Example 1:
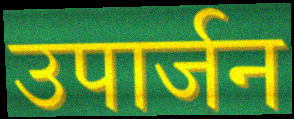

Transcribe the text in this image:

उपार्जन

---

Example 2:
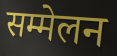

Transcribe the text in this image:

सम्मेलन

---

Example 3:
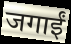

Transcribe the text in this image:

जगाईं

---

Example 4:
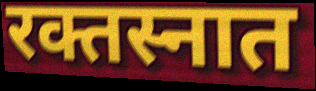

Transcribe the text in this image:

रक्तस्नात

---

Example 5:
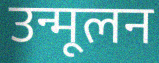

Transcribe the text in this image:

उन्मूलन